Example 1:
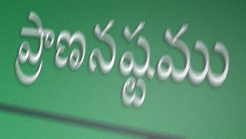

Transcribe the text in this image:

ప్రాణనష్టము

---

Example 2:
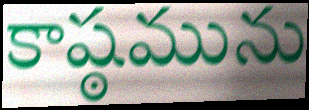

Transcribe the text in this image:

కాష్ఠమును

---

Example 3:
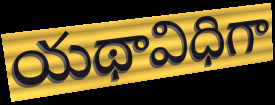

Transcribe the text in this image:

యథావిధిగా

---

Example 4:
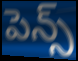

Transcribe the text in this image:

పెన్స్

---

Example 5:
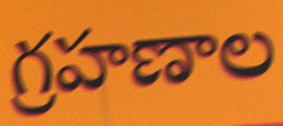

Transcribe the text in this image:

గ్రహణాల